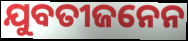
ଯୁବତୀଜନେନ